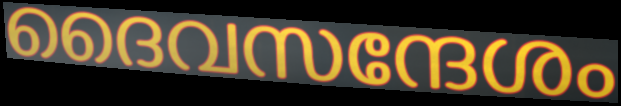
ദൈവസന്ദേശം